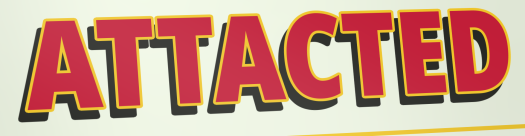
ATTACTED